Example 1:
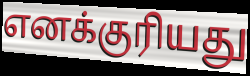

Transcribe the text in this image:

எனக்குரியது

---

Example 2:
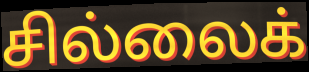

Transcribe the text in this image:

சில்லைக்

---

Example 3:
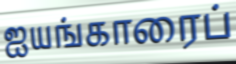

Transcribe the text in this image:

ஐயங்காரைப்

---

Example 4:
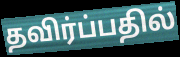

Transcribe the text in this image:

தவிர்ப்பதில்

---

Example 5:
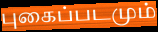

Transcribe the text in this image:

புகைப்படமும்